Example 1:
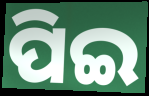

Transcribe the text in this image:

ପିଇ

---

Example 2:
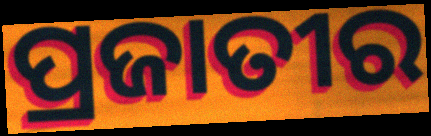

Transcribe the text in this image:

ପ୍ରଜାତୀର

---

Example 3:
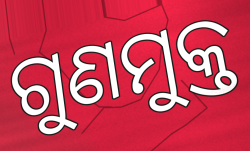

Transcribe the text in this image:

ଗୁଣମୁକ୍ତ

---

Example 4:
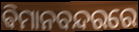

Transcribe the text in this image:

ଵିମାନବନ୍ଦରରେ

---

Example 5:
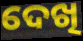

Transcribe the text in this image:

ଦେଖି